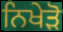
ਨਿਖੇੜੋ